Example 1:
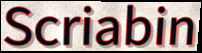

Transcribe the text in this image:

Scriabin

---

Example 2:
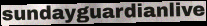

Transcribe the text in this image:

sundayguardianlive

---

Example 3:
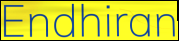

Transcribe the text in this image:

Endhiran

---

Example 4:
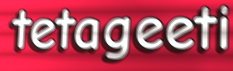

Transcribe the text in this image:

tetageeti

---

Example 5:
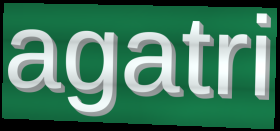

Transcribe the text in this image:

agatri